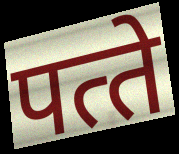
पत्‍ते